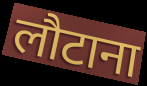
लौटाना